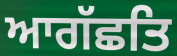
ਆਗੱਛਤਿ